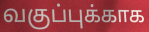
வகுப்புக்காக